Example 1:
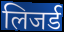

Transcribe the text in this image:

लिजर्ड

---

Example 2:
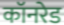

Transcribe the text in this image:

कॉनरेड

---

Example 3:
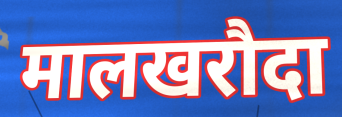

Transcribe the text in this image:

मालखरौदा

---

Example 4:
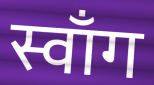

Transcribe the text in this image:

स्वाँग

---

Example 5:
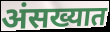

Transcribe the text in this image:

अंसख्यात